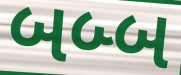
બબ્બ